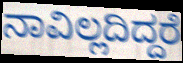
ನಾವಿಲ್ಲದಿದ್ದರೆ